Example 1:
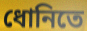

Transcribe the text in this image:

ধোনিতে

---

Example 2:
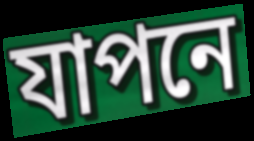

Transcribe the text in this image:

যাপনে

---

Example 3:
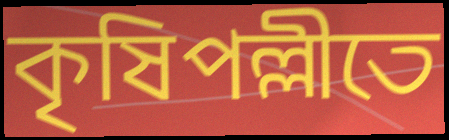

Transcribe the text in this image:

কৃষিপল্লীতে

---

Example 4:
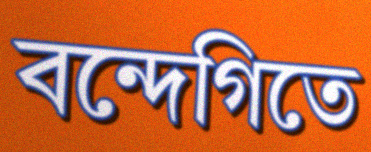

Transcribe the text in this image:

বন্দেগিতে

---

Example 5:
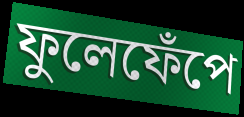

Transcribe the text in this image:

ফুলেফেঁপে